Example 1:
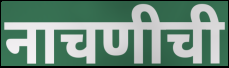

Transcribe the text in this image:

नाचणीची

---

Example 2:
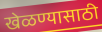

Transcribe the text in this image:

खेळण्यासाठी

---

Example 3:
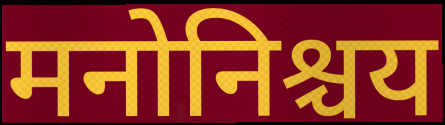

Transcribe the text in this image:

मनोनिश्चय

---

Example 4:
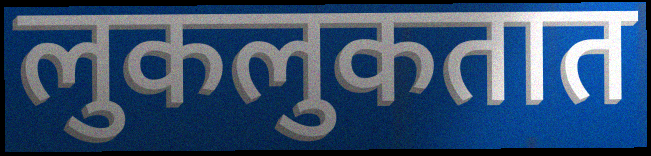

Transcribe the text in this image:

लुकलुकतात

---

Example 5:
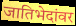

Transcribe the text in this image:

जातिभेदांवर